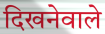
दिखनेवाले